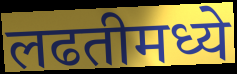
लढतीमध्ये